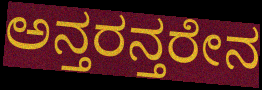
ಅನ್ತರನ್ತರೇನ